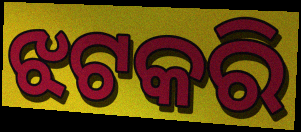
ଝଟକରି